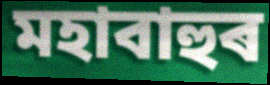
মহাবাহুৰ